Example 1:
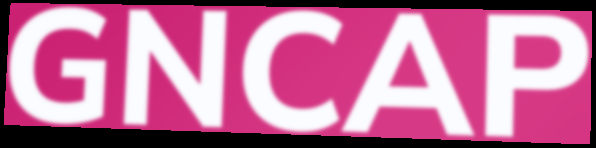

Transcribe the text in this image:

GNCAP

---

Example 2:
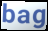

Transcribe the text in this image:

bag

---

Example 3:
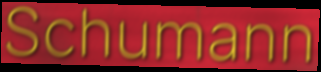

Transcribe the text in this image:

Schumann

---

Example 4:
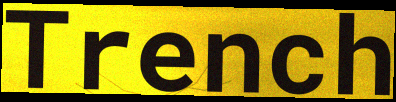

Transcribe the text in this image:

Trench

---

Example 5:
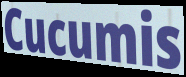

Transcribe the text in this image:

Cucumis